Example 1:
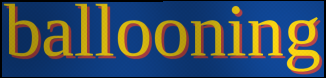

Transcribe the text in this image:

ballooning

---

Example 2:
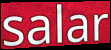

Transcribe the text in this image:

salar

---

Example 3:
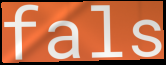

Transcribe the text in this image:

fals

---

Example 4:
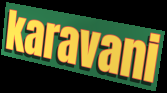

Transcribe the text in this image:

karavani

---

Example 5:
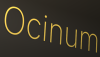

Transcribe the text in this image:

Ocinum